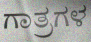
ಗಾತ್ರಗಳ